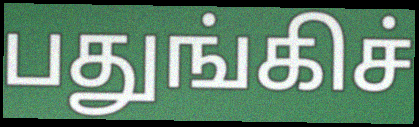
பதுங்கிச்